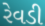
રેવડી